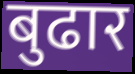
बुढार